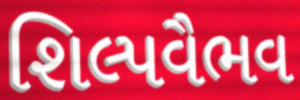
શિલ્પવૈભવ